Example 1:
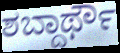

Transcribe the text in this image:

ಶಬ್ದಾರ್ಥೌ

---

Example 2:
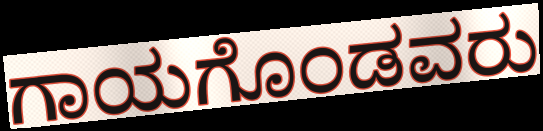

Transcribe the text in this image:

ಗಾಯಗೊಂಡವರು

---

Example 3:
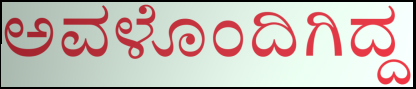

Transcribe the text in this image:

ಅವಳೊಂದಿಗಿದ್ದ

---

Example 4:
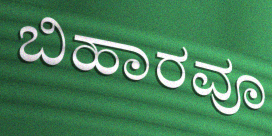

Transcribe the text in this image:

ಬಿಹಾರವೂ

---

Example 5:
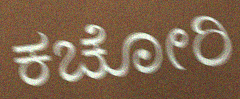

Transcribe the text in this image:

ಕಚೋರಿ